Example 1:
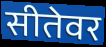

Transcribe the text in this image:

सीतेवर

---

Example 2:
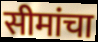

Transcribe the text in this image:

सीमांचा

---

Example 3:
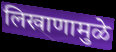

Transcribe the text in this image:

लिखाणामुळे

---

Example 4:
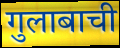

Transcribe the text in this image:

गुलाबाची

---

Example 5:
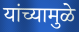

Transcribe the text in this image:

यांच्यामुळे